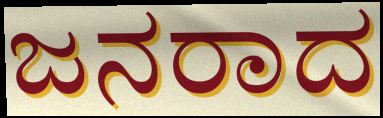
ಜನರಾದ